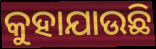
କୁହାଯାଉଛି